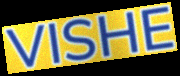
VISHE